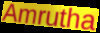
Amrutha